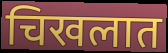
चिखलात